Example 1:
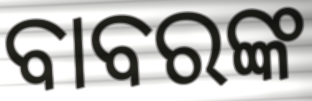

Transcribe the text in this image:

ବାବରଙ୍କ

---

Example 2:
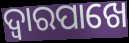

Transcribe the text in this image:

ଦ୍ୱାରପାଖେ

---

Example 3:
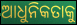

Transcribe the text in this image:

ଆଧୁନିକତାକୁ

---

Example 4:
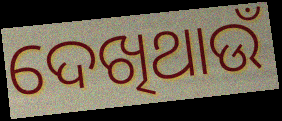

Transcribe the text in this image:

ଦେଖିଥାଉଁ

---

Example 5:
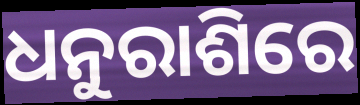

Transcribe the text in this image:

ଧନୁରାଶିରେ